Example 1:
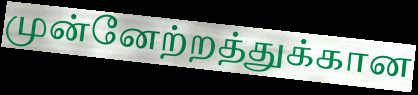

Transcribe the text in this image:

முன்னேற்றத்துக்கான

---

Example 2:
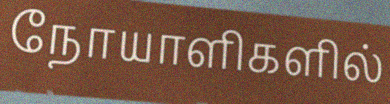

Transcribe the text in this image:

நோயாளிகளில்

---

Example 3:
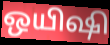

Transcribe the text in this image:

ஒயிஷி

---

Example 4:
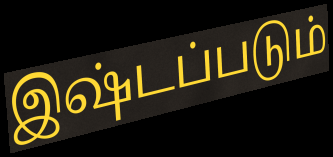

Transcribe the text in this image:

இஷ்டப்படும்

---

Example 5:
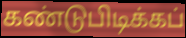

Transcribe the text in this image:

கண்டுபிடிக்கப்